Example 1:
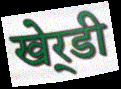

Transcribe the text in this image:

खेर्डी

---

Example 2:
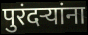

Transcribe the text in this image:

पुरंदऱ्यांना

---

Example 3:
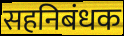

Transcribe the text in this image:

सहनिबंधक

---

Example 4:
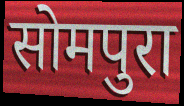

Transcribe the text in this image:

सोमपुरा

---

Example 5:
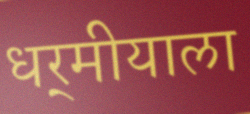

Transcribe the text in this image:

धर्मीयाला